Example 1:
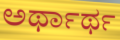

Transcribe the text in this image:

ಅರ್ಥಾರ್ಥ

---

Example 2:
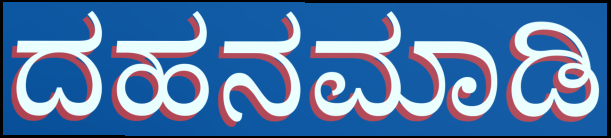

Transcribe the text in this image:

ದಹನಮಾಡಿ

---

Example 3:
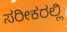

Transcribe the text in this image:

ಸರೀಕರಲ್ಲಿ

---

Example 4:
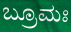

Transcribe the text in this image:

ಬ್ರೂಮಃ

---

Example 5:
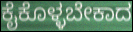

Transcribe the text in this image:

ಕೈಕೊಳ್ಳಬೇಕಾದ